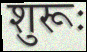
शुरूः